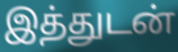
இத்துடன்